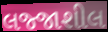
લજ્જાશીલ